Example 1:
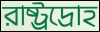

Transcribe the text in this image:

রাষ্ট্রদ্রোহ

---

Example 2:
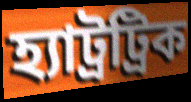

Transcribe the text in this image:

হ্যাট্রট্রিক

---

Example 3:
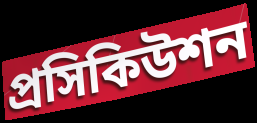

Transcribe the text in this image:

প্রসিকিউশন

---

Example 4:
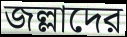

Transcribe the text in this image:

জল্লাদের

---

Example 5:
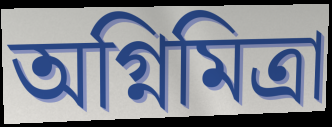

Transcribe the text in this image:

অগ্নিমিত্রা